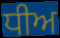
ਧੀਅ